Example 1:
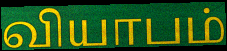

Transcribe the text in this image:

வியாபம்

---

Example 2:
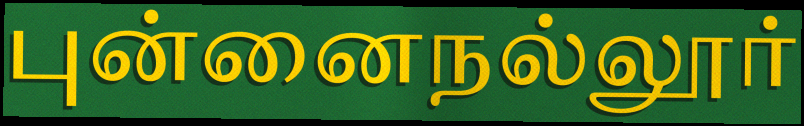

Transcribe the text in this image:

புன்னைநல்லூர்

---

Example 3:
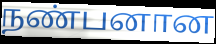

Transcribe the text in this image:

நண்பனான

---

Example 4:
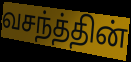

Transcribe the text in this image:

வசந்த்தின்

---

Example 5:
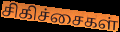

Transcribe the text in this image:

சிகிச்சைகள்